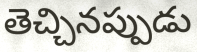
తెచ్చినప్పుడు